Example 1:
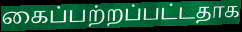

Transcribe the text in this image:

கைப்பற்றப்பட்டதாக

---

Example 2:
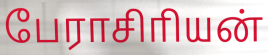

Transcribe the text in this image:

பேராசிரியன்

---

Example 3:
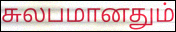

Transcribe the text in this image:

சுலபமானதும்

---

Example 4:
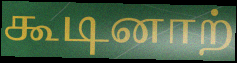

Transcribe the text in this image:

கூடினாற்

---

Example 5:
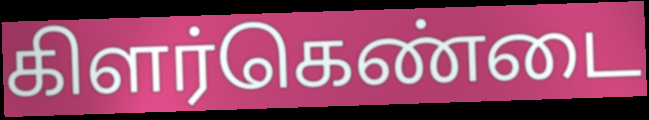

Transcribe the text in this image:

கிளர்கெண்டை